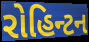
રોહિન્ટન